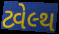
ટ્વેલ્થ